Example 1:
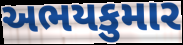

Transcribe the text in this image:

અભયકુમાર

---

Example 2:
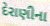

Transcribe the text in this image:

દેરાણીના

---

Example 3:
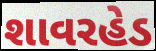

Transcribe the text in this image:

શાવરહેડ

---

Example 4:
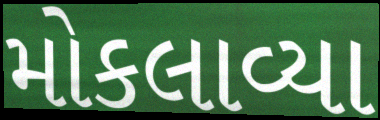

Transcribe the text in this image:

મોકલાવ્યા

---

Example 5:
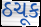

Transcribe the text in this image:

ઠચૂક